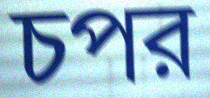
চপর